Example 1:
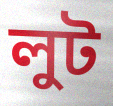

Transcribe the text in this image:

লুট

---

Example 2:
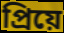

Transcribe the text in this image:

প্রিয়ে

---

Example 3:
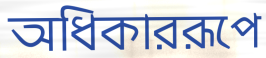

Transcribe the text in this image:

অধিকাররূপে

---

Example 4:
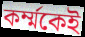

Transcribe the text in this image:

কর্ম্মকেই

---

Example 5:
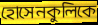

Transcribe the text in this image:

হোসেনকুলিকে